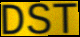
DST